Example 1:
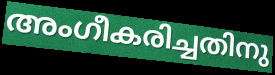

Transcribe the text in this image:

അംഗീകരിച്ചതിനു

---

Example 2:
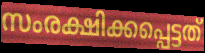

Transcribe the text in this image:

സംരക്ഷിക്കപ്പെട്ടത്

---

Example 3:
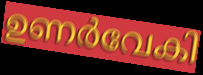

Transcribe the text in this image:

ഉണർവേകി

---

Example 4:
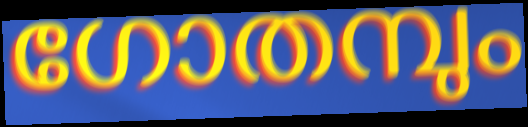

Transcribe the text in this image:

ഗോതമ്പും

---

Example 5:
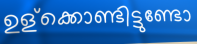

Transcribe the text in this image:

ഉള്ക്കൊണ്ടിട്ടുണ്ടോ